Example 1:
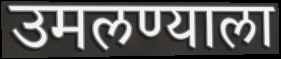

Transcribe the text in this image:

उमलण्याला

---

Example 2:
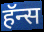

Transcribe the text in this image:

हॅन्स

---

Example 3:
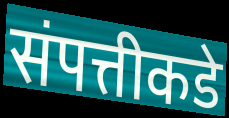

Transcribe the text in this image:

संपत्तीकडे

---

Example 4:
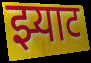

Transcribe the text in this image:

झ्याट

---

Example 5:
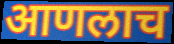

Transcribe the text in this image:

आणलाच